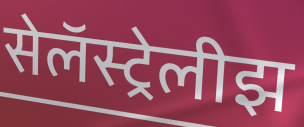
सेलॅस्ट्रेलीझ